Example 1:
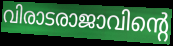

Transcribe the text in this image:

വിരാടരാജാവിന്റെ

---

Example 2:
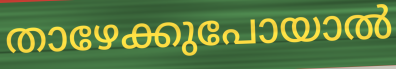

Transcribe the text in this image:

താഴേക്കുപോയാൽ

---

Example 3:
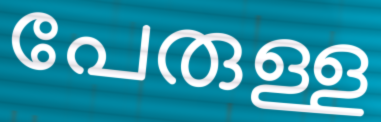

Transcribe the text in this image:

പേരുള്ള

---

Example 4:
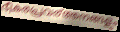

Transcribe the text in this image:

ഭീകരപ്രവര്ത്തനങ്ങളും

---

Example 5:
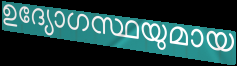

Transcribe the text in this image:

ഉദ്യോഗസ്ഥയുമായ